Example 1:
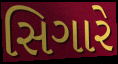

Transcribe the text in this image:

સિગારે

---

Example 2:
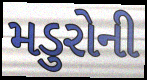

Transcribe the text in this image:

મડુરોની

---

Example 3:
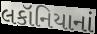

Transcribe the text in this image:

લકૉનિયાનાં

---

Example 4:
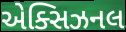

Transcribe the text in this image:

એક્સિઝનલ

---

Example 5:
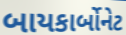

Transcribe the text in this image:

બાયકાર્બોનેટ